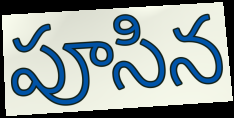
పూసిన